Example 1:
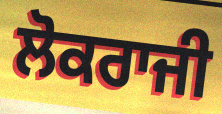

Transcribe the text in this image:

ਲੋਕਰਾਜੀ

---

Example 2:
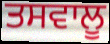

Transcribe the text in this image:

ਤਸਵਾਲੂ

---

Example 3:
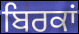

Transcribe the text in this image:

ਬਿਰਕਾਂ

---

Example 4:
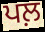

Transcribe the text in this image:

ਪਲ਼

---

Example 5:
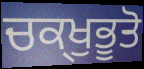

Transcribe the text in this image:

ਚਕ੍ਖੁਭੂਤੋ